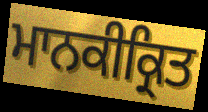
ਮਾਨਕੀਕ੍ਰਿਤ